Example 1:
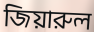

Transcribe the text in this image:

জিয়ারুল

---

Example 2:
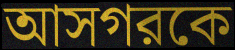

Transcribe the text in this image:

আসগরকে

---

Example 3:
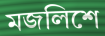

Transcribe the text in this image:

মজলিশে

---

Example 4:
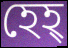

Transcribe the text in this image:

হেহ্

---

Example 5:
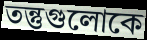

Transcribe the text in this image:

তন্তুগুলোকে